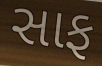
સાફ